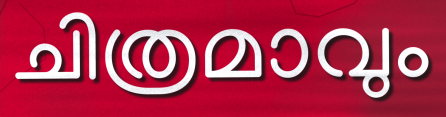
ചിത്രമാവും